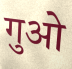
गुओ